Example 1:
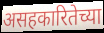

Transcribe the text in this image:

असहकारितेच्या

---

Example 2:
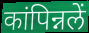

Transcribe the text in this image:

कांपिन्नलें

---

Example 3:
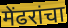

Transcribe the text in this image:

मेंढरांचा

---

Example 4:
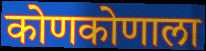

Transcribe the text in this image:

कोणकोणाला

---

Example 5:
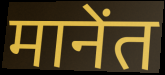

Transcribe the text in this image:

मानेंत